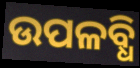
ଉପଳବ୍ଧି